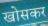
खोसकर